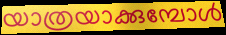
യാത്രയാക്കുമ്പോൾ